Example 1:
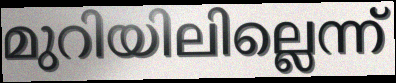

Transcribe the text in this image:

മുറിയിലില്ലെന്ന്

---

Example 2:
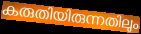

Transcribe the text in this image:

കരുതിയിരുന്നതിലും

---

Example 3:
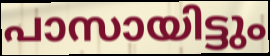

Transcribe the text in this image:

പാസായിട്ടും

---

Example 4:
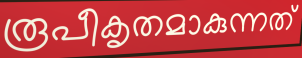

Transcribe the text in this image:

രൂപീകൃതമാകുന്നത്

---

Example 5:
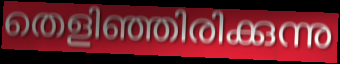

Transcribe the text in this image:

തെളിഞ്ഞിരിക്കുന്നു